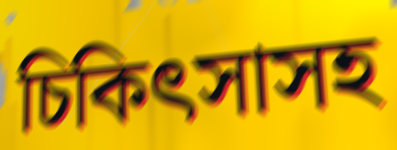
চিকিৎসাসহ